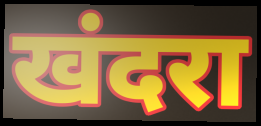
खंदरा